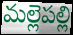
మల్లెపల్లి